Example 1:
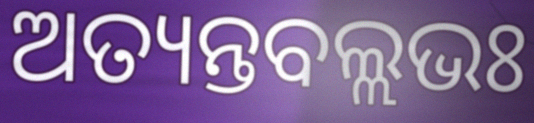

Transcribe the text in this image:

ଅତ୍ୟନ୍ତବଲ୍ଲଭଃ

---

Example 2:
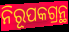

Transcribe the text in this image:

ନିରୂପକଗ୍ରନ୍ଥ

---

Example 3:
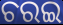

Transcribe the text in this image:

ଚରଇ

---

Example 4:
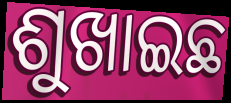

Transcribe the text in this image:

ଶୁଖାଇଛ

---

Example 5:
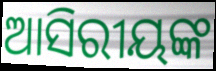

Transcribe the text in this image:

ଆସିରୀୟଙ୍କ